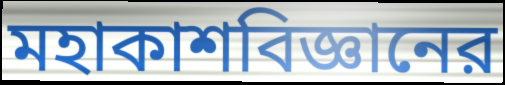
মহাকাশবিজ্ঞানের